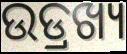
ଉଡ୍ରଖ୍ୟ